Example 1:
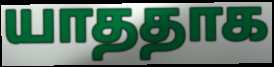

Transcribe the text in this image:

யாததாக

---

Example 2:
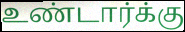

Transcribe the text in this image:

உண்டார்க்கு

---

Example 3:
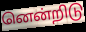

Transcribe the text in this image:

னென்றிடு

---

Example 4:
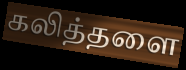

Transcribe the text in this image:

கலித்தளை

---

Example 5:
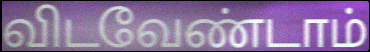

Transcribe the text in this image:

விடவேண்டாம்